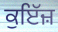
ਕੁਇੱਜ਼